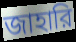
জাহারি